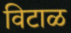
विटाळ